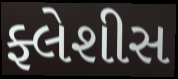
ફ્લેશીસ